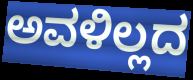
ಅವಳಿಲ್ಲದ